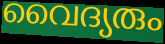
വൈദ്യരും